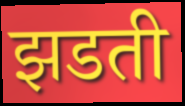
झडती